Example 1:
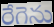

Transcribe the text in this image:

రేగెను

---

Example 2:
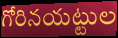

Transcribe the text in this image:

గోరినయట్టుల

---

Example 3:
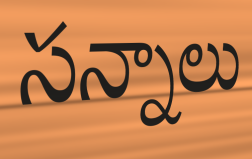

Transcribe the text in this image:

సన్నాలు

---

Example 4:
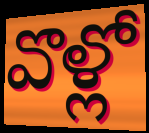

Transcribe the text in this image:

వొళ్లో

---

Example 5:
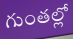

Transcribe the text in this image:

గుంతల్లో